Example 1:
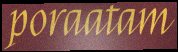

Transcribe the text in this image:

poraatam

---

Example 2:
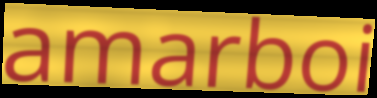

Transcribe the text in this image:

amarboi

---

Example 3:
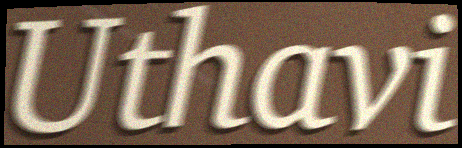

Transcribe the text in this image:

Uthavi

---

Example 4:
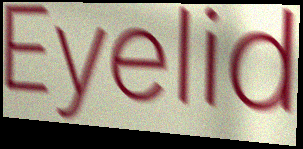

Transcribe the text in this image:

Eyelid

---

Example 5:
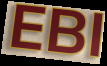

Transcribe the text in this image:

EBI